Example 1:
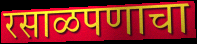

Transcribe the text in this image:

रसाळपणाचा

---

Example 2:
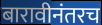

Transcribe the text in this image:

बारावीनंतरच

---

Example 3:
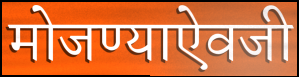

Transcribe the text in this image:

मोजण्याऐवजी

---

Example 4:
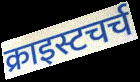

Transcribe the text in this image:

क्राइस्टचर्च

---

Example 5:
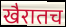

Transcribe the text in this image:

खैरातच